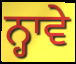
ਨ੍ਹਾਵੇ